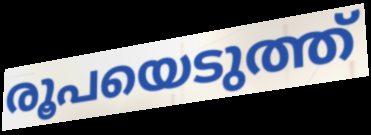
രൂപയെടുത്ത്